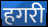
हगरी